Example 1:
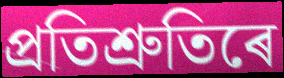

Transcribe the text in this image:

প্ৰতিশ্ৰুতিৰে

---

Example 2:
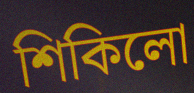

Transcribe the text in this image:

শিকিলো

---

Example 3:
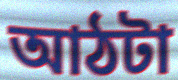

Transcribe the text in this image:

আঠটা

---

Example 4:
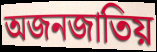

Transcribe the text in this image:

অজনজাতিয়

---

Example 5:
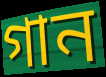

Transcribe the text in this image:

গান